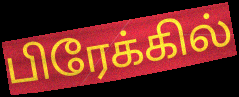
பிரேக்கில்